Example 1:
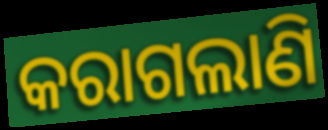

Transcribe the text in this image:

କରାଗଲାଣି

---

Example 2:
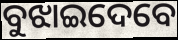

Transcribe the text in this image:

ବୁଝାଇଦେବେ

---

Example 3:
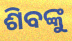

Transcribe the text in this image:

ଶିବଙ୍କୁ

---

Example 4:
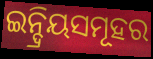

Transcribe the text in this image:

ଇନ୍ଦ୍ରିୟସମୂହର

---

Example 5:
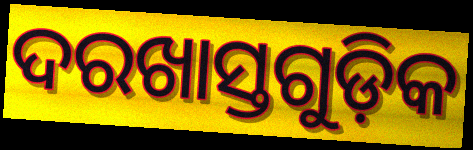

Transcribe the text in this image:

ଦରଖାସ୍ତଗୁଡ଼ିକ